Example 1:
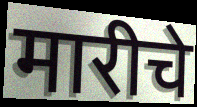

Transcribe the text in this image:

मारीचे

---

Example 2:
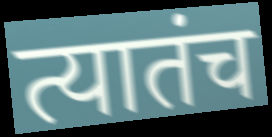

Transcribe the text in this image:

त्यातंच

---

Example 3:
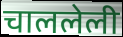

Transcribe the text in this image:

चाललेली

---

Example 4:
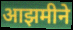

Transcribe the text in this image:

आझमीने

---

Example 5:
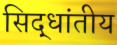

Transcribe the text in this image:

सिद्धांतीय